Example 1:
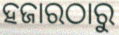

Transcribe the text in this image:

ହଜାରଠାରୁ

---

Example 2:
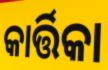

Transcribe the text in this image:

କାର୍ତ୍ତିକା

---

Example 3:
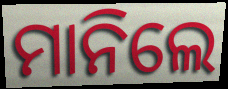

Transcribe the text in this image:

ମାନିଲେ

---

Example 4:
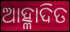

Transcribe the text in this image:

ଆହ୍ଳାଦିତ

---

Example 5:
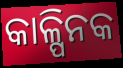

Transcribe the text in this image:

କାଳ୍ପିନକ